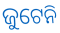
ଜୁଟେନି